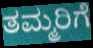
ತಮ್ಮರಿಗೆ